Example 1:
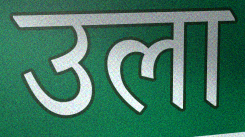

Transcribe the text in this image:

उला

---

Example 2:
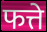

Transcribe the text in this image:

फत्ते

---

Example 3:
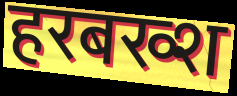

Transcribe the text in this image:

हरबख्श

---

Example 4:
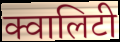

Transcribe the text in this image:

क्‍वालिटी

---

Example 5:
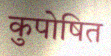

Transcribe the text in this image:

कुपोषित